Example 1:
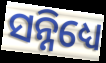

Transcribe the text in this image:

ସନ୍ନିଧ୍ୟେ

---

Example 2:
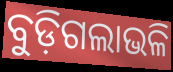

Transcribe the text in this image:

ବୁଡ଼ିଗଲାଭଳି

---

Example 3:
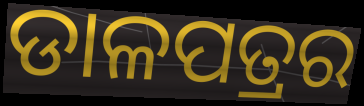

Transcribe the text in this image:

ଡାଳପତ୍ରର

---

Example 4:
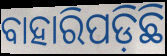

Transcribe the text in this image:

ବାହାରିପଡ଼ିଛି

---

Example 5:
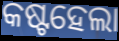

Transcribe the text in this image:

କଷ୍ଟହେଲା